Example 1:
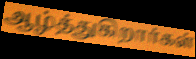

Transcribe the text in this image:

ஆழ்த்துகிறார்கள்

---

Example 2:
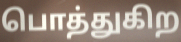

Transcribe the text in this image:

பொத்துகிற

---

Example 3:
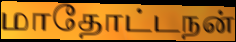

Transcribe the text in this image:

மாதோட்டநன்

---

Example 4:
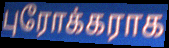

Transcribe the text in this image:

புரோக்கராக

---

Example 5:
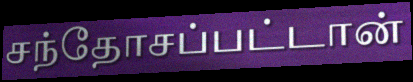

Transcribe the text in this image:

சந்தோசப்பட்டான்